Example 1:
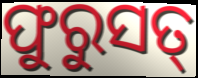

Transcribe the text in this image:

ଫୁରୁସତ୍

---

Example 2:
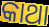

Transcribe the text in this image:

କାଥା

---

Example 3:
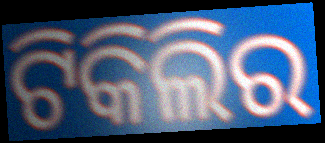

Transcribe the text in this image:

ଟିକିଲିର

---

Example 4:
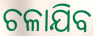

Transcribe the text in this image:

ଚଳାଯିବ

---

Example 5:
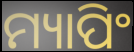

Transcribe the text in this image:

ମ୍ୟାପିଂ